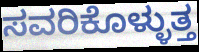
ಸವರಿಕೊಳ್ಳುತ್ತ